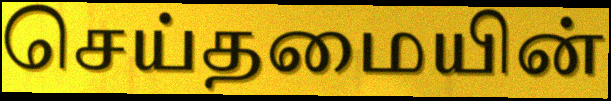
செய்தமையின்